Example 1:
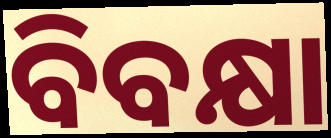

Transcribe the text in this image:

ବିବକ୍ଷା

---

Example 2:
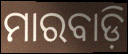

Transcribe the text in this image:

ମାରବାଡ଼ି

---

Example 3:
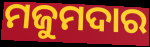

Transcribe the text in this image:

ମଜୁମଦାର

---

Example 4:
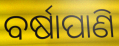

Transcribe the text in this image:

ବର୍ଷାପାଣି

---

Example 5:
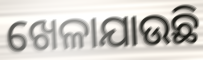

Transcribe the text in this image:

ଖେଳାଯାଉଛି